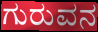
ಗುರುವನ